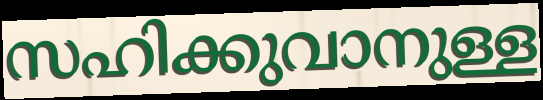
സഹിക്കുവാനുള്ള